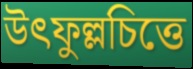
উৎফুল্লচিত্তে